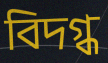
বিদগ্ধ